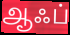
ஆஃப்